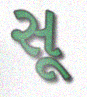
સૂ